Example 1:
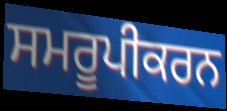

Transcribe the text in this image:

ਸਮਰੂਪੀਕਰਨ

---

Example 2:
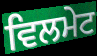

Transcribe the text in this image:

ਵਿਲਮੇਟ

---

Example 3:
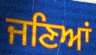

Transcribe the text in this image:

ਜਣਿਆਂ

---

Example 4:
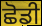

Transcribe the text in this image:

ਛੋਡੀ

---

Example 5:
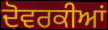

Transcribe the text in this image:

ਦੋਵਰਕੀਆਂ